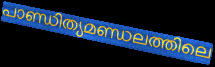
പാണ്ഡിത്യമണ്ഡലത്തിലെ